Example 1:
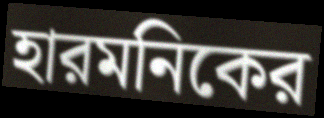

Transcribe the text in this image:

হারমনিকের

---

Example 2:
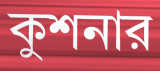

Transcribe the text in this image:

কুশনার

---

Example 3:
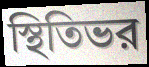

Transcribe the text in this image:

স্থিতিভর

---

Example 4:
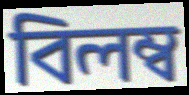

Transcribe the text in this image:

বিলম্ব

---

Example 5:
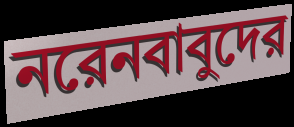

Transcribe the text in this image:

নরেনবাবুদের